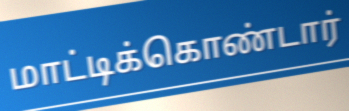
மாட்டிக்கொண்டார்